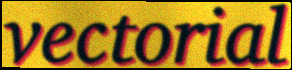
vectorial